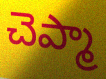
చెప్మా